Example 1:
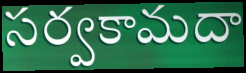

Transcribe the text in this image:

సర్వకామదా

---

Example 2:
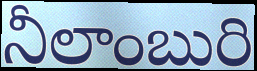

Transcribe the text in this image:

నీలాంబురి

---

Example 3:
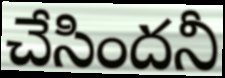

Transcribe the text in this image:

చేసిందనీ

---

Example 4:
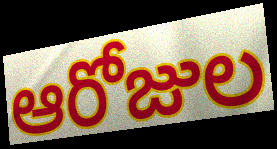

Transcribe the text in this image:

ఆరోజుల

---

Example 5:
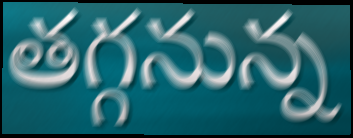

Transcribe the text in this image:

తగ్గనున్న